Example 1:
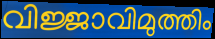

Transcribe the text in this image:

വിജ്ജാവിമുത്തിം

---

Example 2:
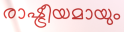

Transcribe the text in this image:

രാഷ്ട്രീയമായും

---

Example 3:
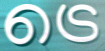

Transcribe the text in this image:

ട്രെ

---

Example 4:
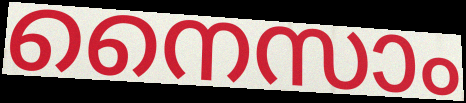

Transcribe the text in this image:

നൈസാം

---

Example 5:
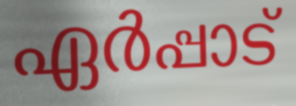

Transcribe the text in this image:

ഏർപ്പാട്